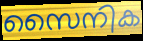
സൈനിക